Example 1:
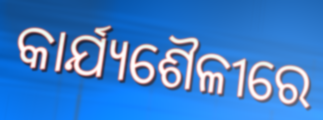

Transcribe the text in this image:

କାର୍ଯ୍ୟଶୈଳୀରେ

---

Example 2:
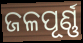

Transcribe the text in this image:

ଜଳପୂର୍ଣ୍ଣ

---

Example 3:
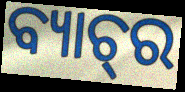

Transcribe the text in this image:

ବ୍ୟାଚ୍‌ର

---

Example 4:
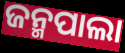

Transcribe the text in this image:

ଜନ୍ମପାଲା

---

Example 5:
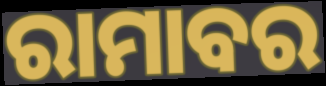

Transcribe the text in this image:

ରାମାବର